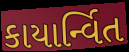
કાયાર્ન્વિત